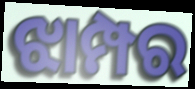
ଝାମ୍ପର